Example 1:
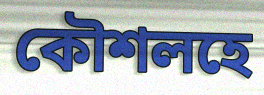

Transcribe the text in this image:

কৌশলহে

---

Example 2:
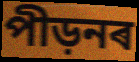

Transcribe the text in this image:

পীড়নৰ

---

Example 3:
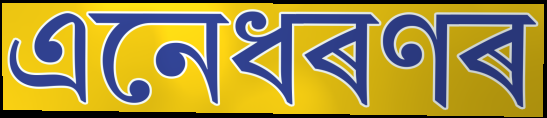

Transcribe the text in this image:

এনেধৰণৰ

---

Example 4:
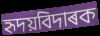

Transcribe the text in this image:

হৃদয়বিদাৰক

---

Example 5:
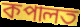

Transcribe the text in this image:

কপালত